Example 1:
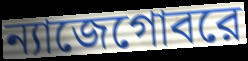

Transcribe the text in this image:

ন্যাজেগোবরে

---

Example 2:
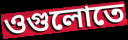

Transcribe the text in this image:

ওগুলোতে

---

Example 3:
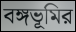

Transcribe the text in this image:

বঙ্গভূমির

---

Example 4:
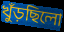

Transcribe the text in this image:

খুঁড়ছিলো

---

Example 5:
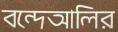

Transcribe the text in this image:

বন্দেআলির